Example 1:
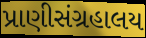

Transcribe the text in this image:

પ્રાણીસંગ્રહાલય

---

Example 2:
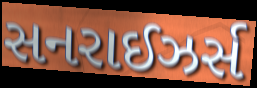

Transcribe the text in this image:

સનરાઈઝર્સ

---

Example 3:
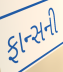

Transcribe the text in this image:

ફાન્સની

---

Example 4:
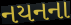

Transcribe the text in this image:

નયનના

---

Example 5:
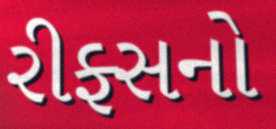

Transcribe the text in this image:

રીફ્સનો